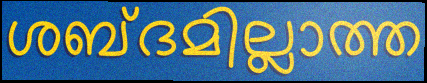
ശബ്ദമില്ലാത്ത